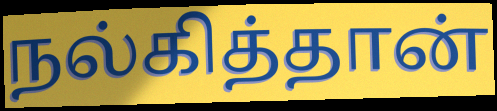
நல்கித்தான்